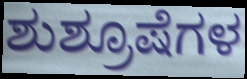
ಶುಶ್ರೂಷೆಗಳ